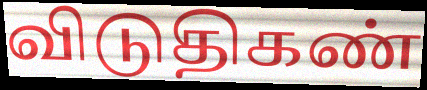
விடுதிகண்